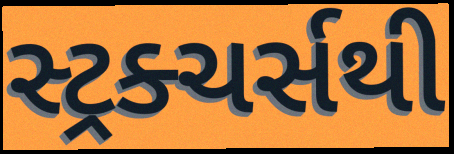
સ્ટ્રક્ચર્સથી